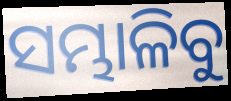
ସମ୍ଭାଳିବୁ